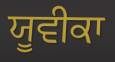
ਯੂਵੀਕਾ